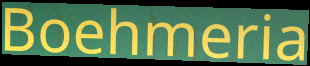
Boehmeria